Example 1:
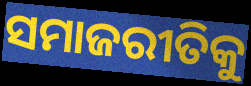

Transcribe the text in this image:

ସମାଜରୀତିକୁ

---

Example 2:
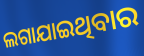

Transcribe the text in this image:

ଲଗାଯାଇଥିବାର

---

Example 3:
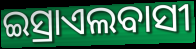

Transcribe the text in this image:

ଇସ୍ରାଏଲବାସୀ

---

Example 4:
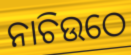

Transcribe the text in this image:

ନାଚିଉଠେ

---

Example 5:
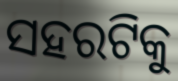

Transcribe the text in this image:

ସହରଟିକୁ